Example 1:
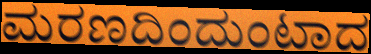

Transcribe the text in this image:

ಮರಣದಿಂದುಂಟಾದ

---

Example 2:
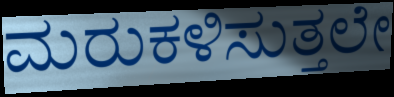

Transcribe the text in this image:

ಮರುಕಳಿಸುತ್ತಲೇ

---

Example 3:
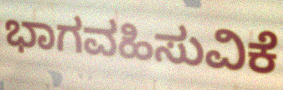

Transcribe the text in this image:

ಭಾಗವಹಿಸುವಿಕೆ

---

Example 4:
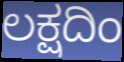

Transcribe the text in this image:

ಲಕ್ಷದಿಂ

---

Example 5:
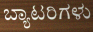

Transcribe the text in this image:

ಬ್ಯಾಟರಿಗಳು